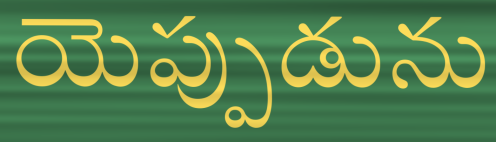
యెప్పుడును